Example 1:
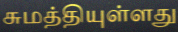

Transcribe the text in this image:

சுமத்தியுள்ளது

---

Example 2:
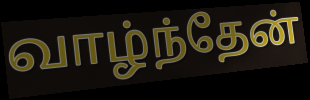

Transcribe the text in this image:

வாழ்ந்தேன்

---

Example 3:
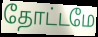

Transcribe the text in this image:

தோட்டமே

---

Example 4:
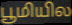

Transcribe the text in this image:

பூமியில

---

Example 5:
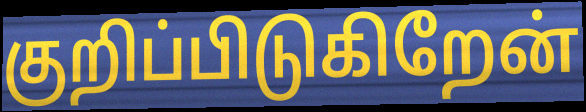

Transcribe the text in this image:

குறிப்பிடுகிறேன்